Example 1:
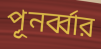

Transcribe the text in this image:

পূনর্ব্বার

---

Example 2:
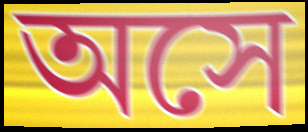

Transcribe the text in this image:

অসে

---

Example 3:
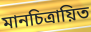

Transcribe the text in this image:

মানচিত্রায়িত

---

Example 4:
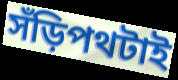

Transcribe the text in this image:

সঁড়িপথটাই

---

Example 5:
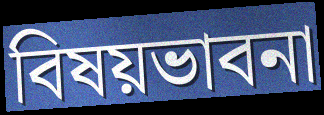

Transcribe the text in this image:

বিষয়ভাবনা